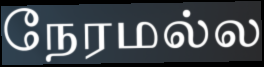
நேரமல்ல